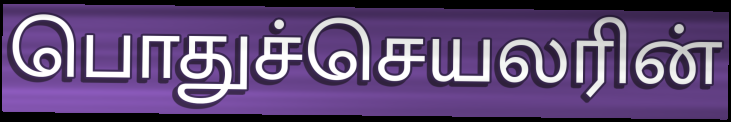
பொதுச்செயலரின்